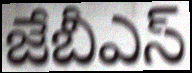
జేబీఎస్